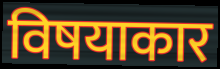
विषयाकार